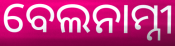
ବେଲନାମ୍ନୀ